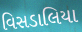
વિસડાલિયા